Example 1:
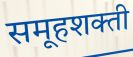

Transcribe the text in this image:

समूहशक्ती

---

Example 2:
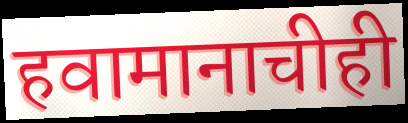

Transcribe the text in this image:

हवामानाचीही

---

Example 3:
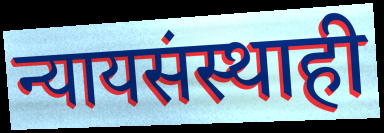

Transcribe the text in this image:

न्यायसंस्थाही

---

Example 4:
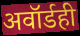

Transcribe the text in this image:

अवॉर्डही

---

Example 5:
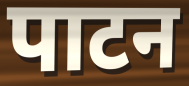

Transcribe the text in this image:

पाटन